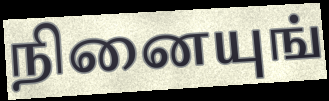
நினையுங்